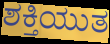
ಶಕ್ತಿಯುತ